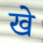
खे